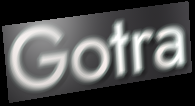
Gotra